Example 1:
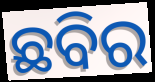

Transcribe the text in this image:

ଛବିର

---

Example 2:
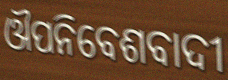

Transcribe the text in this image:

ଔପନିବେଶବାଦୀ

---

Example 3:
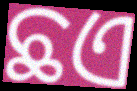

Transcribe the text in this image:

ଛଏ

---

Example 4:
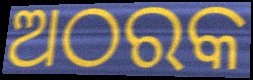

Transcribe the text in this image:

ଅଠରକ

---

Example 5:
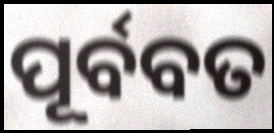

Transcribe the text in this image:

ପୂର୍ବବତ